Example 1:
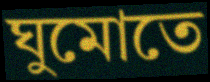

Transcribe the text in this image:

ঘুমোতে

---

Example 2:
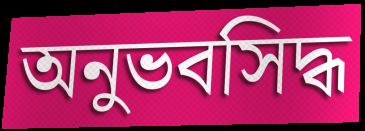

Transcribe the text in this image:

অনুভবসিদ্ধ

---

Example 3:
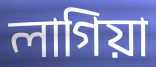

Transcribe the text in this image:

লাগিয়া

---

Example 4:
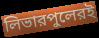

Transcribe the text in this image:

লিভারপুলেরই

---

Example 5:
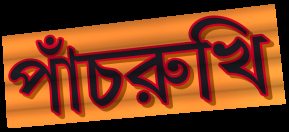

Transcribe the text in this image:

পাঁচরুখি